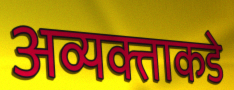
अव्यक्ताकडे